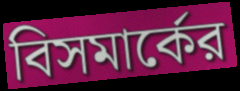
বিসমার্কের